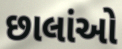
છાલાંઓ